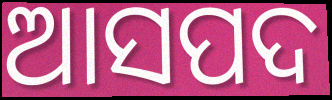
ଆସପଦ